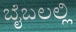
ಬೈಬಲಲ್ಲಿ